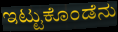
ಇಟ್ಟುಕೊಂಡೆನು